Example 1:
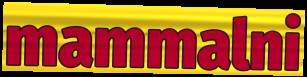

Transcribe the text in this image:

mammalni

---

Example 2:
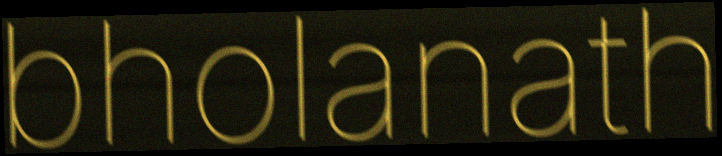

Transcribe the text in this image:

bholanath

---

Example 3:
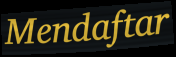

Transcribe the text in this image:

Mendaftar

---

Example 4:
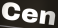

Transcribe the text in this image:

Cen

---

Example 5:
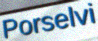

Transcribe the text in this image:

Porselvi